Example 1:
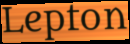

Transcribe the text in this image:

Lepton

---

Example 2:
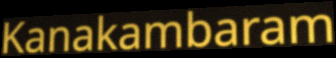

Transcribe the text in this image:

Kanakambaram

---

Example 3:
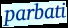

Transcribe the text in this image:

parbati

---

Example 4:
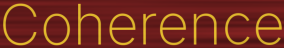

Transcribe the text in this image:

Coherence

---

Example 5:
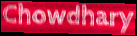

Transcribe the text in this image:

Chowdhary